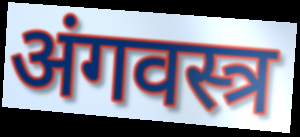
अंगवस्त्र